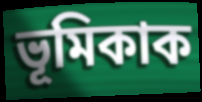
ভূমিকাক